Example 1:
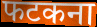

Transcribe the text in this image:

फटकना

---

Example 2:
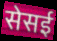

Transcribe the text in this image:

सेसई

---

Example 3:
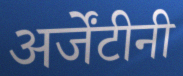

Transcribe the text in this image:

अर्जेंटीनी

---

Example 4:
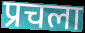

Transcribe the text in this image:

प्रचला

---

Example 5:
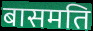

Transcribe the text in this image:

बासमति